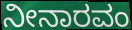
ನೀನಾರವಂ